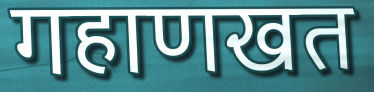
गहाणखत